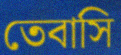
তেবাসি